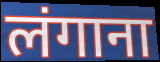
लंगाना